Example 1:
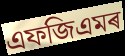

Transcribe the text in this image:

এফজিএমৰ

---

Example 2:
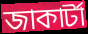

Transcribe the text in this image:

জাকাৰ্টা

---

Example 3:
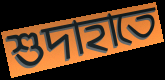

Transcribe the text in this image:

শুদাহাতে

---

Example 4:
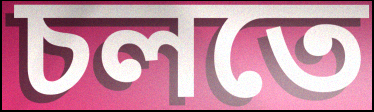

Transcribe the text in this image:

চলতে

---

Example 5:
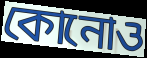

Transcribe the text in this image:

কোনোও